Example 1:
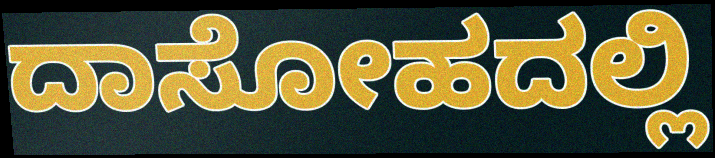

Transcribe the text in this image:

ದಾಸೋಹದಲ್ಲಿ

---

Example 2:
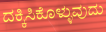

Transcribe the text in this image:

ದಕ್ಕಿಸಿಕೊಳ್ಳುವುದು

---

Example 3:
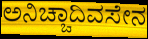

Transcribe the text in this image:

ಅನಿಚ್ಚಾದಿವಸೇನ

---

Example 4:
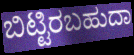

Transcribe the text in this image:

ಬಿಟ್ಟಿರಬಹುದಾ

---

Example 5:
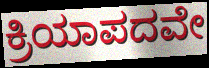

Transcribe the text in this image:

ಕ್ರಿಯಾಪದವೇ